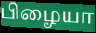
பிழையா